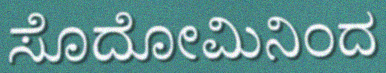
ಸೊದೋಮಿನಿಂದ